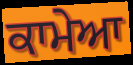
ਕਾਮੇਆ